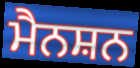
ਮੈਨਸ਼ਨ